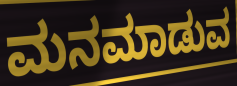
ಮನಮಾಡುವ